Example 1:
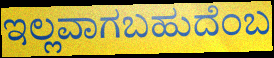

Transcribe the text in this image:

ಇಲ್ಲವಾಗಬಹುದೆಂಬ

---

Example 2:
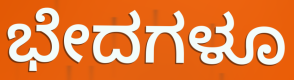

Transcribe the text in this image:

ಭೇದಗಳೂ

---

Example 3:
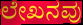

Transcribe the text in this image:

ಲೇಖನವು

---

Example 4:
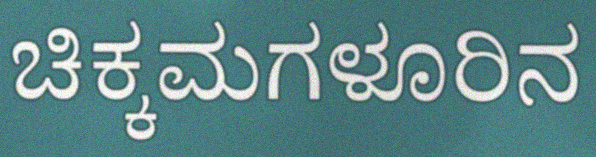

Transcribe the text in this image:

ಚಿಕ್ಕಮಗಳೂರಿನ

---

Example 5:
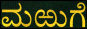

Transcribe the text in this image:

ಮಱುಗೆ